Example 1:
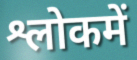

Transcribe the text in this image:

श्लोकमें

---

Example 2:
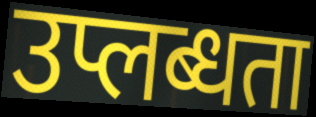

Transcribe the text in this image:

उप्लब्धता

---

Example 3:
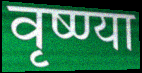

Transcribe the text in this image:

वृष्ण्या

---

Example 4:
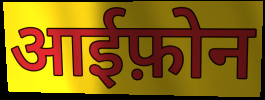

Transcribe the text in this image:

आईफ़ोन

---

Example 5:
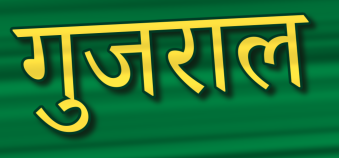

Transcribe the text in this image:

गुजराल